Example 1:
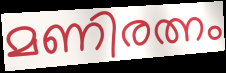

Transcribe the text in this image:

മണിരത്നം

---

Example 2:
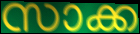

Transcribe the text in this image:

സാക്ക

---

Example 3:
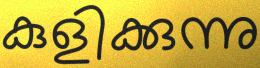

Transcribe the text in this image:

കുളിക്കുന്നു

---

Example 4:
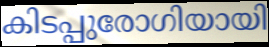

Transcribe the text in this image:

കിടപ്പുരോഗിയായി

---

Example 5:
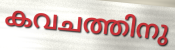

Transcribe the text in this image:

കവചത്തിനു